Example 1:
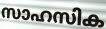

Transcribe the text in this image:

സാഹസിക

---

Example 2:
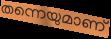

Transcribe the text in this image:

തന്നെയുമാണ്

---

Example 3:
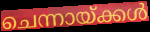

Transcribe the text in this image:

ചെന്നായ്ക്കൾ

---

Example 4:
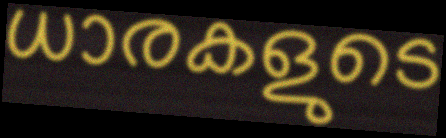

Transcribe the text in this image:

ധാരകളുടെ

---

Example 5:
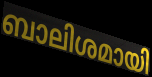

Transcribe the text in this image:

ബാലിശമായി